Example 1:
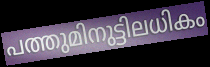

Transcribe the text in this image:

പത്തുമിനുട്ടിലധികം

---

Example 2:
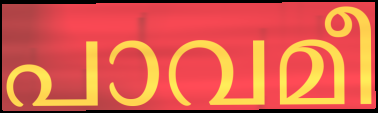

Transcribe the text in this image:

പാവമീ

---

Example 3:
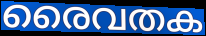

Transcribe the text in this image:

രൈവതക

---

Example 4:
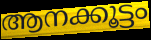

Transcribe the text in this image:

ആനക്കൂട്ടം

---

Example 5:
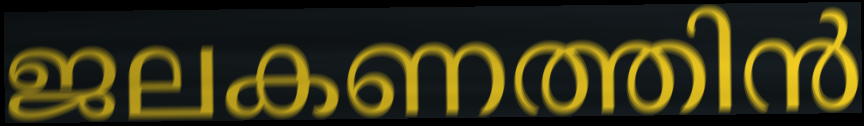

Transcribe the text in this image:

ജലകണത്തിൻ